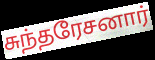
சுந்தரேசனார்